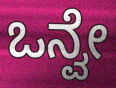
ಒನ್ವೇ